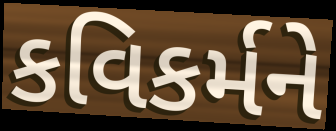
કવિકર્મને